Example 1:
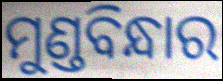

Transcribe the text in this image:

ମୁଣ୍ଡବିନ୍ଧାର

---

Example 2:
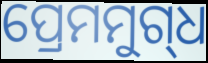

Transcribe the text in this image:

ପ୍ରେମମୁଗ୍‌ଧ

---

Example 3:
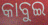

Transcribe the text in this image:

କାବୁଇ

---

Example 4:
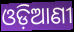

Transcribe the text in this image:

ଓଡ଼ିଆଣୀ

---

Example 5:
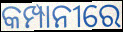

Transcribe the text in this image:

କମ୍ପାନୀରେ